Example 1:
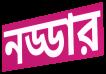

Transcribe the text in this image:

নড্ডার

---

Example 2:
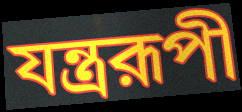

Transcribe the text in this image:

যন্ত্ররূপী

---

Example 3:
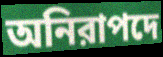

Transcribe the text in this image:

অনিরাপদে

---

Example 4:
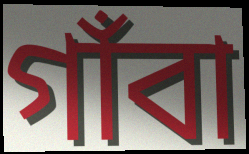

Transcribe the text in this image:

গাঁবা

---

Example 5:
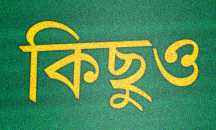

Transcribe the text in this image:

কিছুও